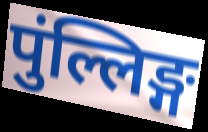
पुंल्लिङ्ग